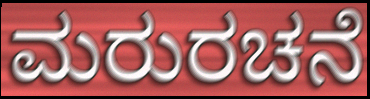
ಮರುರಚನೆ